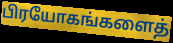
பிரயோகங்களைத்